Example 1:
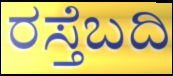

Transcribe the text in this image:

ರಸ್ತೆಬದಿ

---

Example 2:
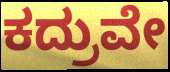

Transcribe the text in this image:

ಕದ್ರುವೇ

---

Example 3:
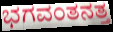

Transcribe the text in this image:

ಭಗವಂತನತ್ತ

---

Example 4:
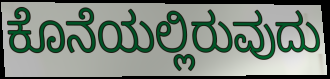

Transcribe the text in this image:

ಕೊನೆಯಲ್ಲಿರುವುದು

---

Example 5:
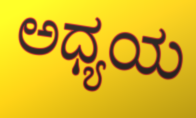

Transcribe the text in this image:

ಅಧ್ಯಯ